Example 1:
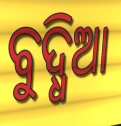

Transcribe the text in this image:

ବୁଦ୍ଧିଆ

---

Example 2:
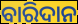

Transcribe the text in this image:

ବାରିଦାନ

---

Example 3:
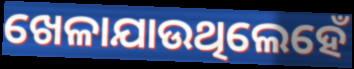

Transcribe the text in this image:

ଖେଳାଯାଉଥିଲେହେଁ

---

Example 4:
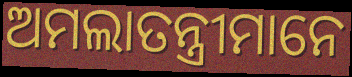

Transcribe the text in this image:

ଅମଲାତନ୍ତ୍ରୀମାନେ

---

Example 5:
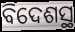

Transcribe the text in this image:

ବିଦେଶସ୍ଥ